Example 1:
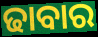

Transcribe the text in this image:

ଢାବାର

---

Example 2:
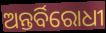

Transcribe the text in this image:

ଅନ୍ତର୍ବିରୋଧୀ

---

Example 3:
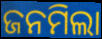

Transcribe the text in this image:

ଜନମିଲା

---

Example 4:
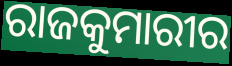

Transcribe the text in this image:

ରାଜକୁମାରୀର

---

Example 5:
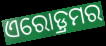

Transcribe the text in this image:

ଏରୋଡ଼୍ରମର